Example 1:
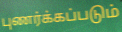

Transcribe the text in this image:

புணர்க்கப்படும்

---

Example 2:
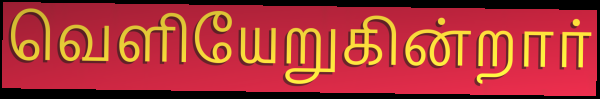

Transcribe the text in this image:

வெளியேறுகின்றார்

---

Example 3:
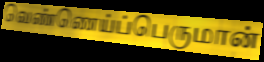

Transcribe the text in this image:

வெண்ணெய்ப்பெருமான்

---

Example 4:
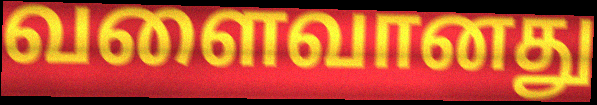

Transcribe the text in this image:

வளைவானது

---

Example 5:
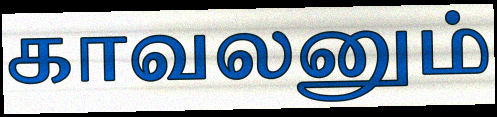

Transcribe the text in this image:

காவலனும்